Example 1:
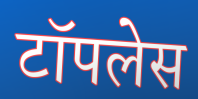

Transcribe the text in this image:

टॉपलेस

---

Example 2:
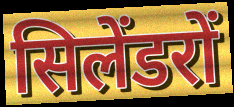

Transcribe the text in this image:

सिलेंडरों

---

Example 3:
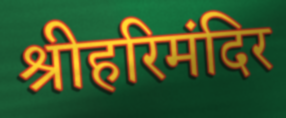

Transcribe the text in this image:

श्रीहरिमंदिर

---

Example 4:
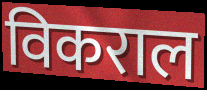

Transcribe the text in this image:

विकराल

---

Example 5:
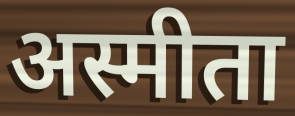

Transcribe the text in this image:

अस्मीता